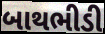
બાથભીડી